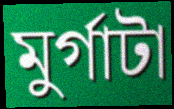
মুর্গাটা